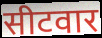
सीटवार